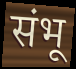
संभू